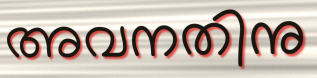
അവനതിനു